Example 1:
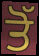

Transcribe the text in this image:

ਤੋੱ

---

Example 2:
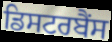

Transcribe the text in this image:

ਡਿਸਟਰਬੈਂਸ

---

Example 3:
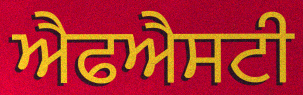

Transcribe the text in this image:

ਐਫਐਸਟੀ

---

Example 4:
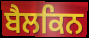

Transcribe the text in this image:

ਬੈਲਕਿਨ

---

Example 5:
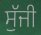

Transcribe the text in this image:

ਸੁੱਜੀ